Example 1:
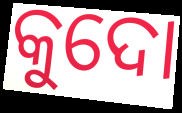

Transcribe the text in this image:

କୁଦୋ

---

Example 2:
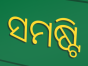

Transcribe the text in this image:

ସମଷ୍ଟି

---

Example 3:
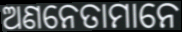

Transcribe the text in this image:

ଅଣନେତାମାନେ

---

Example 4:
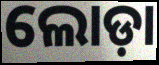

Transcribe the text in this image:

ଲୋଡ଼ା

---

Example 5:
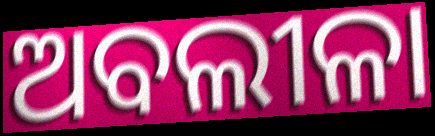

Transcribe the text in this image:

ଅବଲୀଳା